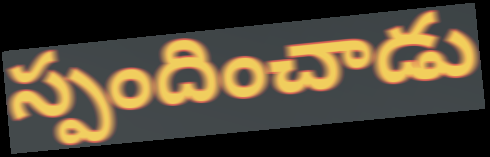
స్పందించాడు